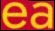
ea